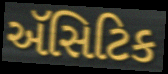
ઍસિટિક